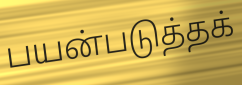
பயன்படுத்தக்